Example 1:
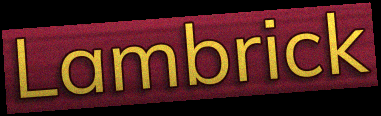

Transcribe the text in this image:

Lambrick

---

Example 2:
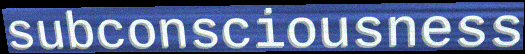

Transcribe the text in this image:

subconsciousness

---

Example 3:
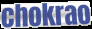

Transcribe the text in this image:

chokrao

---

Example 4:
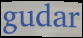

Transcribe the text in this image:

gudar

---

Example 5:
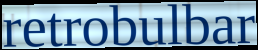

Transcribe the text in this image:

retrobulbar